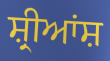
ਸ਼੍ਰੀਆਂਸ਼